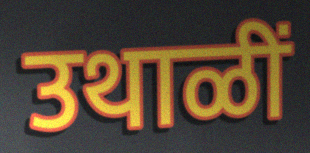
उथाळीं